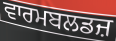
ਵਾਰਮਬਲਡਜ਼